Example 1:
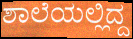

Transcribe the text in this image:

ಶಾಲೆಯಲ್ಲಿದ್ದ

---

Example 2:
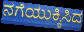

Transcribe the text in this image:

ನಗೆಯುಕ್ಕಿಸಿದ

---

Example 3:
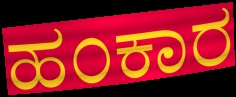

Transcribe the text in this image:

ಹಂಕಾರ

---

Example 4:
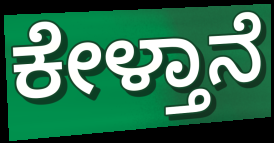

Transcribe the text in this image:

ಕೇಳ್ತಾನೆ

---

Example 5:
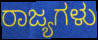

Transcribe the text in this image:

ರಾಜ್ಯಗಳು